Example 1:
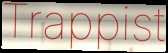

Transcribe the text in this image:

Trappist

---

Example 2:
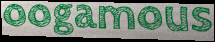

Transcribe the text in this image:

oogamous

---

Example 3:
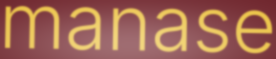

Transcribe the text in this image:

manase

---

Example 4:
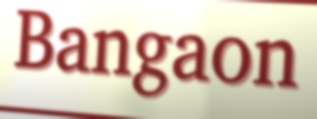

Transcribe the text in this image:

Bangaon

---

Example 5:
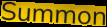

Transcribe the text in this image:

Summon